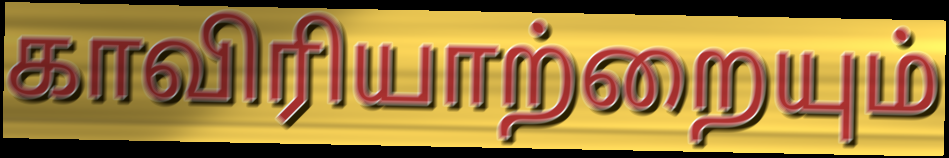
காவிரியாற்றையும்